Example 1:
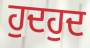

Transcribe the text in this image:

ਹੁਦਹੁਦ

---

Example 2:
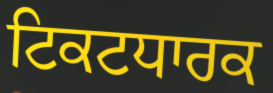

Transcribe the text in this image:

ਟਿਕਟਧਾਰਕ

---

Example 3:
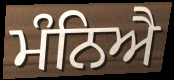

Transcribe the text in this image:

ਮੰਨਿਐ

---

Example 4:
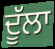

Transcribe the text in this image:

ਦੂੱਲਾ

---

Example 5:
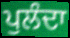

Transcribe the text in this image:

ਪੁਲੰਦਾ